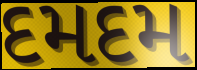
દમદમ